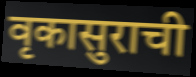
वृकासुराची